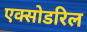
एक्सोडरिल